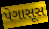
પેગાસૂસ